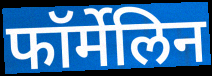
फॉर्मेलिन